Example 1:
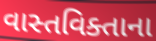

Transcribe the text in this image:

વાસ્તવિક્તાના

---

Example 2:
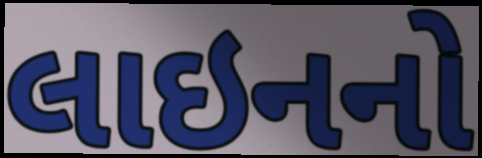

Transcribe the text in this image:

લાઇનનો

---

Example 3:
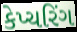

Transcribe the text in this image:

કેપ્ચરિંગ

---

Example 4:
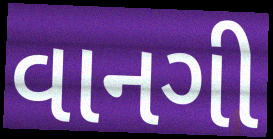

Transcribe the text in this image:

વાનગી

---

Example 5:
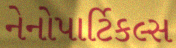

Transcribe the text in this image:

નેનોપાર્ટિકલ્સ